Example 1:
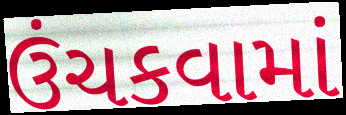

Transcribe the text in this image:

ઉંચકવામાં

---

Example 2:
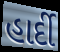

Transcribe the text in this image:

હાર્દી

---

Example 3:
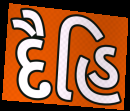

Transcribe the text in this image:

દૈહિ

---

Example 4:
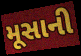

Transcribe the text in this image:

મૂસાની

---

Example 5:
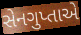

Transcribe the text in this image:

સેનગુપ્તાએ